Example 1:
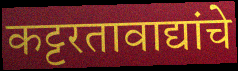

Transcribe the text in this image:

कट्टरतावाद्यांचे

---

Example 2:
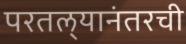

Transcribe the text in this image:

परतल्यानंतरची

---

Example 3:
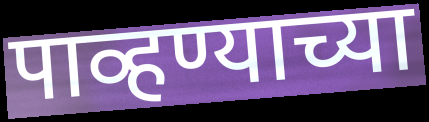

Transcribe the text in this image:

पाव्हण्याच्या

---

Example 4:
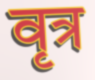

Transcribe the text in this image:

वृत्र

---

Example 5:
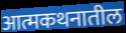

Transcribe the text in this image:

आत्मकथनातील